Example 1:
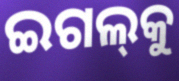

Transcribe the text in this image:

ଇଗଲ୍‌କୁ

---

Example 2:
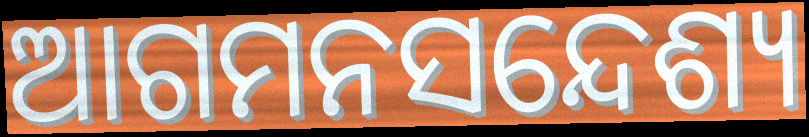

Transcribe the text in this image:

ଆଗମନସନ୍ଦେଶ୍ୟ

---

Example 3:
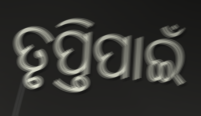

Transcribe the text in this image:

ତୃପ୍ତିପାଇଁ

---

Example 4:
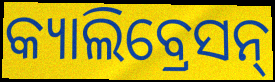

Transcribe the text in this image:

କ୍ୟାଲିବ୍ରେସନ୍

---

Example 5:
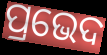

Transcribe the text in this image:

ପ୍ରଭେଦ